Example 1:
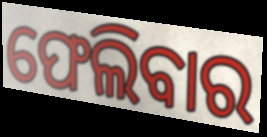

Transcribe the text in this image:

ଫେଲିବାର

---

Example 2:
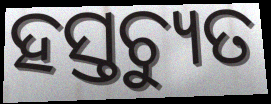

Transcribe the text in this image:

ହସ୍ତଚ୍ୟୁତ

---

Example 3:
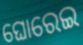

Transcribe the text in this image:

ଘୋରେଇ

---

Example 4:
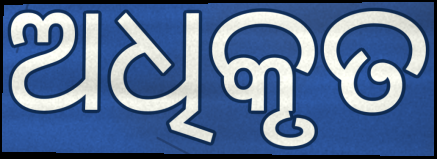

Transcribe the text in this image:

ଅଧିକୃତ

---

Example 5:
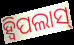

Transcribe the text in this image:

ହ୍ୱିପଲାସ୍